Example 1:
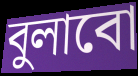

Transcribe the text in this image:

বুলাবো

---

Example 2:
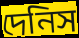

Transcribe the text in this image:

দেনিস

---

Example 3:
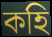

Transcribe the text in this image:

কহি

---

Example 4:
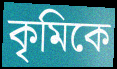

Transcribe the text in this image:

কৃমিকে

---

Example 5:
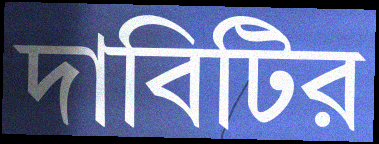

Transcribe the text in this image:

দাবিটির